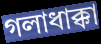
গলাধাক্কা